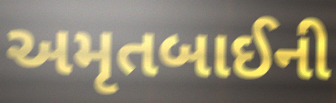
અમૃતબાઈની